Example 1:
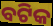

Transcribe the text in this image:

ବଟିକ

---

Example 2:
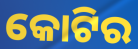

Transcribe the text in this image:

କୋଟିର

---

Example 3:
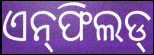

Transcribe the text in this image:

ଏନ୍‌ଫିଲଡ୍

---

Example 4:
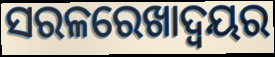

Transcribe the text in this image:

ସରଳରେଖାଦ୍ବୟର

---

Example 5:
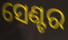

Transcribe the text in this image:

ସେଣ୍ଟର